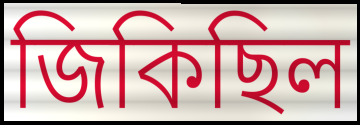
জিকিছিল